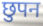
छुपन